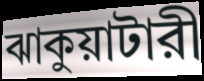
ঝাকুয়াটারী